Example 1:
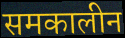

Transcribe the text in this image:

समकालीन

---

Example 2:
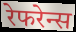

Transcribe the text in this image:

रेफरेन्स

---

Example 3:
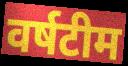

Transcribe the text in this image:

वर्षटीम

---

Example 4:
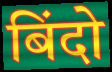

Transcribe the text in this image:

बिंदो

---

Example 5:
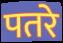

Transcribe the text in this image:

पतरे